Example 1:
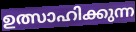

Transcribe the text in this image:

ഉത്സാഹിക്കുന്ന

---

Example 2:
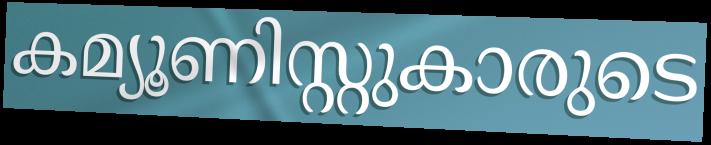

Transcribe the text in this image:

കമ്യൂണിസ്റ്റുകാരുടെ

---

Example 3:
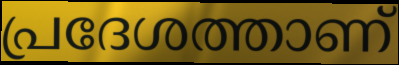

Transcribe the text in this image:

പ്രദേശത്താണ്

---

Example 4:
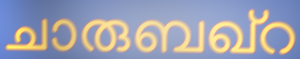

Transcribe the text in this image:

ചാരുബഖ്റ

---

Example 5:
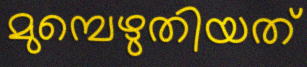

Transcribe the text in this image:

മുമ്പെഴുതിയത്